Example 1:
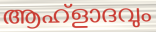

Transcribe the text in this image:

ആഹ്ളാദവും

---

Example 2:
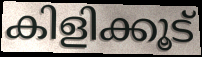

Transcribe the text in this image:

കിളിക്കൂട്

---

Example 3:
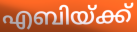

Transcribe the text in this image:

എബിയ്ക്ക്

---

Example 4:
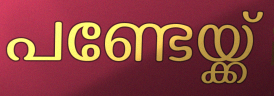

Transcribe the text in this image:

പണ്ടേയ്ക്ക്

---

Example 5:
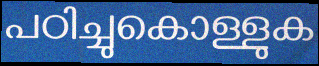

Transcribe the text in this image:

പഠിച്ചുകൊള്ളുക